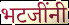
भटजींनी